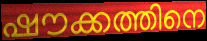
ഷൗക്കത്തിനെ